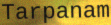
Tarpanam